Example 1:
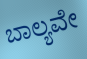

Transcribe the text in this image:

ಬಾಲ್ಯವೇ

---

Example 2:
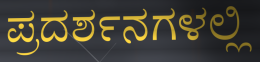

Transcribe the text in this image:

ಪ್ರದರ್ಶನಗಳಲ್ಲಿ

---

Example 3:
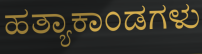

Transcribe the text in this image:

ಹತ್ಯಾಕಾಂಡಗಳು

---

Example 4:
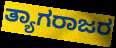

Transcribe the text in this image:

ತ್ಯಾಗರಾಜರ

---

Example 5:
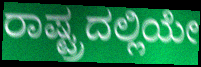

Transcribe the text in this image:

ರಾಷ್ಟ್ರದಲ್ಲಿಯೇ